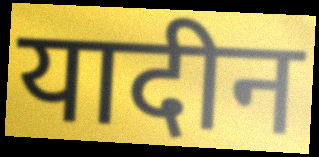
यादीन